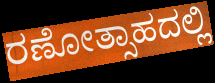
ರಣೋತ್ಸಾಹದಲ್ಲಿ